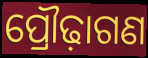
ପ୍ରୌଢ଼ାଗଣ